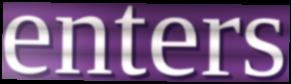
enters